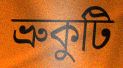
ভ্ৰুকুটি